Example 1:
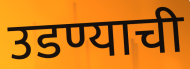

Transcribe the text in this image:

उडण्याची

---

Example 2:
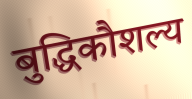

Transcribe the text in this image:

बुद्धिकौशल्य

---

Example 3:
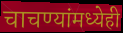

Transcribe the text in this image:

चाचण्यांमध्येही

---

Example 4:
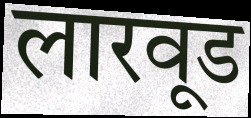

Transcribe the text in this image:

लारवूड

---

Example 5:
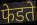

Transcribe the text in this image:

फेडते